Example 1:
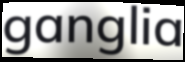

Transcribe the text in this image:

ganglia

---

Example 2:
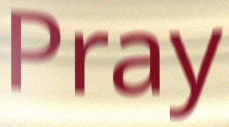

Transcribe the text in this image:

Pray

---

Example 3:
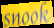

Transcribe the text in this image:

snook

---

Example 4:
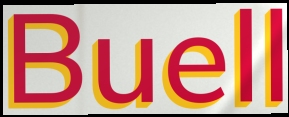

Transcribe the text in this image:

Buell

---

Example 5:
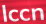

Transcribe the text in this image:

lccn